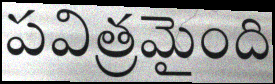
పవిత్రమైంది